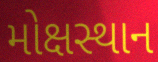
મોક્ષસ્થાન